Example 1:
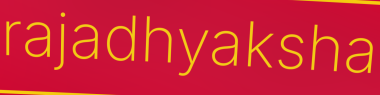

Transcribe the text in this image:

rajadhyaksha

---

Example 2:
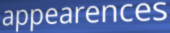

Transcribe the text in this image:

appearences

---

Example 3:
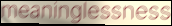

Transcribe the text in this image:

meaninglessness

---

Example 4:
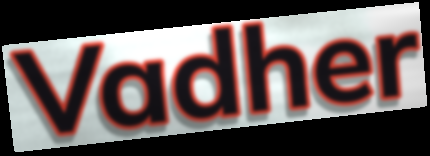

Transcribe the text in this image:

Vadher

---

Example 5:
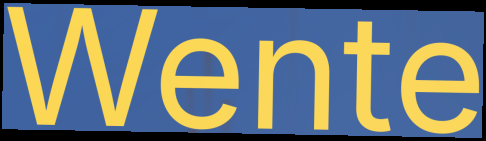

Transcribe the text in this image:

Wente